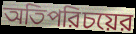
অতিপরিচয়ের